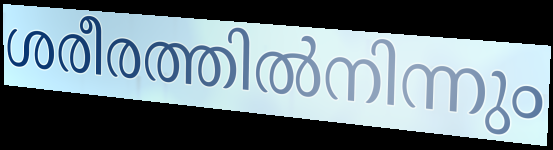
ശരീരത്തിൽനിന്നും